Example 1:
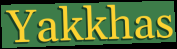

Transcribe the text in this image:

Yakkhas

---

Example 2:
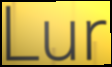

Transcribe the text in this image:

Lur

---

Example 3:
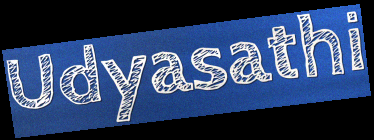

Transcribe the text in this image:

Udyasathi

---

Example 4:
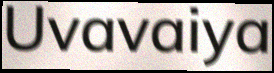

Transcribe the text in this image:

Uvavaiya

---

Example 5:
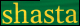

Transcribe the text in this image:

shasta